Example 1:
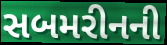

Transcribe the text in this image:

સબમરીનની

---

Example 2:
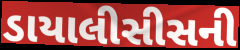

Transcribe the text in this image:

ડાયાલીસીસની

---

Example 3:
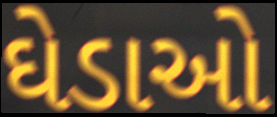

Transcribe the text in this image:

ઘેડાઓ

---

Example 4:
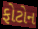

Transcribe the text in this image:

ફોટોન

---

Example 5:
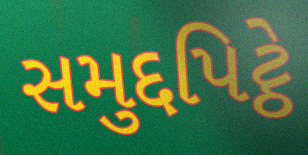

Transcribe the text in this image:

સમુદ્દપિટ્ઠે